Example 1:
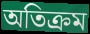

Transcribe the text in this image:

অতিক্রম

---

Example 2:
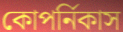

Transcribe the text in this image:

কোপর্নিকাস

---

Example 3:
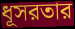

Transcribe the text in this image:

ধূসরতার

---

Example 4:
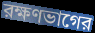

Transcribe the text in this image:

রক্ষণভাগের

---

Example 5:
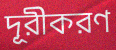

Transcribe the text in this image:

দূরীকরণ